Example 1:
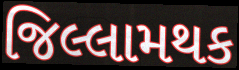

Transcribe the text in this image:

જિલ્લામથક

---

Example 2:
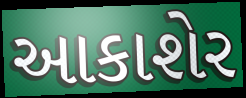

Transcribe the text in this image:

આકાશેર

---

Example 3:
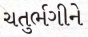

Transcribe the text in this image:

ચતુર્ભગીને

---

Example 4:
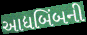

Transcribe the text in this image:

આદ્યબિંબની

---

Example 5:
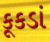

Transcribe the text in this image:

કૂકડાં